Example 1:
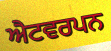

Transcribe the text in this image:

ਐਟਵਰਪਨ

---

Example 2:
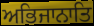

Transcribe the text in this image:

ਅਭਿਜਾਨਾਤਿ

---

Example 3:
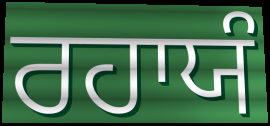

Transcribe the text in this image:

ਰਹਾਯੰ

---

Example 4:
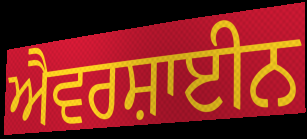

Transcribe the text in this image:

ਐਵਰਸ਼ਾਈਨ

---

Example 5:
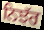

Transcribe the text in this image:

ਨਿਝੱਰ